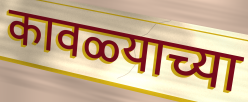
कावळ्याच्या